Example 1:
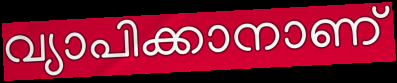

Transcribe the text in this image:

വ്യാപിക്കാനാണ്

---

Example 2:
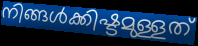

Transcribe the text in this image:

നിങ്ങൾക്കിഷ്ടമുള്ളത്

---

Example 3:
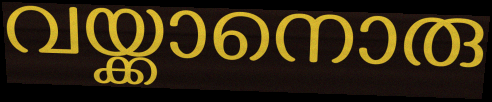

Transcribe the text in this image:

വയ്ക്കാനൊരു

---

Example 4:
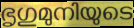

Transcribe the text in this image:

ഭൃഗുമുനിയുടെ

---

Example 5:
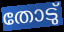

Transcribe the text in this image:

തോടു്